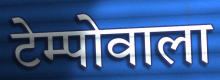
टेम्पोवाला